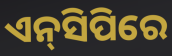
ଏନ୍‌ସିପିରେ